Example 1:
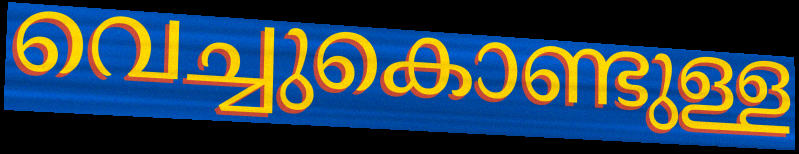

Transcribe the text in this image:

വെച്ചുകൊണ്ടുള്ള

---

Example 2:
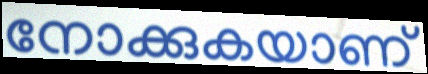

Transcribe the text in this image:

നോക്കുകയാണ്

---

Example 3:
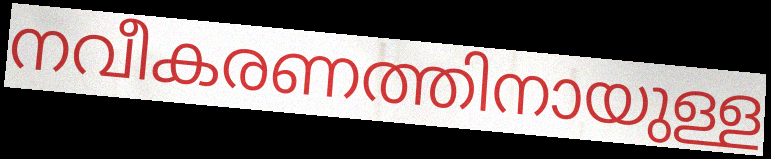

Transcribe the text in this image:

നവീകരണത്തിനായുള്ള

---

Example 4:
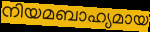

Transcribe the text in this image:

നിയമബാഹ്യമായ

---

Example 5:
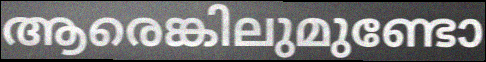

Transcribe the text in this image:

ആരെങ്കിലുമുണ്ടോ